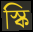
স্কি